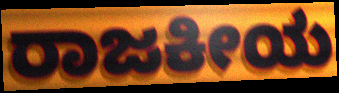
ರಾಜಕೀಯ